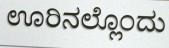
ಊರಿನಲ್ಲೊಂದು